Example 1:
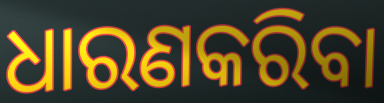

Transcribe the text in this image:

ଧାରଣକରିବା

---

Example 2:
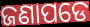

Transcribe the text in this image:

ଜଣାପଡେ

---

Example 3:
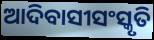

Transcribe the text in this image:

ଆଦିବାସୀସଂସ୍କୃତି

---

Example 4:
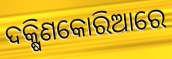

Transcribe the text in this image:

ଦକ୍ଷିଣକୋରିଆରେ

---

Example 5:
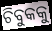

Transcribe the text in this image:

ଚିବୁକକୁ